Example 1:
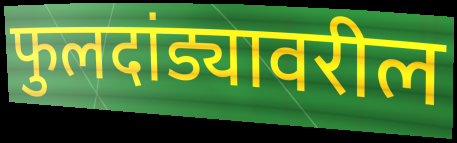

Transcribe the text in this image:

फुलदांड्यावरील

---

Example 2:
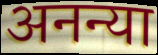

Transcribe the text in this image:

अनन्या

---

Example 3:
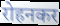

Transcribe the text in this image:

रोहनकर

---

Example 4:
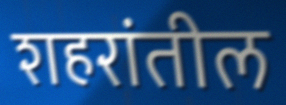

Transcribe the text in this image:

शहरांतील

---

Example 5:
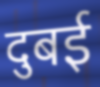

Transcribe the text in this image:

दुबई